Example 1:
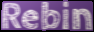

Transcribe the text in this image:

Rebin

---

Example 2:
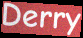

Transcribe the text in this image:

Derry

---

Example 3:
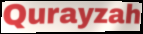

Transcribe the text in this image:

Qurayzah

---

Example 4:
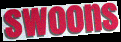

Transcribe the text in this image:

swoons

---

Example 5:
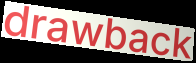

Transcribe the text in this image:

drawback